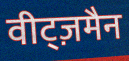
वीट्ज़मैन